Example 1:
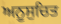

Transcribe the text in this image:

ਅਨੂਸੁਚਿਤ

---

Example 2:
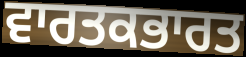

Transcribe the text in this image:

ਵਾਰਤਕਭਾਰਤ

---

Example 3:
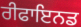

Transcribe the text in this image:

ਰੀਫਾਇਨਡ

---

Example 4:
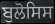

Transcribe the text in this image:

ਬੁਲੋਸਿਸ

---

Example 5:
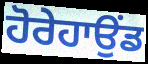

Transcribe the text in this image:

ਹੋਰੇਹਾਉਂਡ